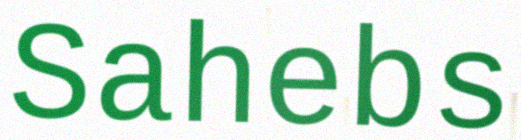
Sahebs